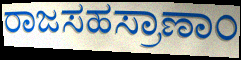
ರಾಜಸಹಸ್ರಾಣಾಂ